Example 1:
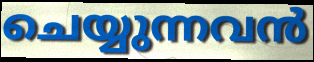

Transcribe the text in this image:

ചെയ്യുന്നവൻ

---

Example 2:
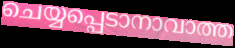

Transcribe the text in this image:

ചെയ്യപ്പെടാനാവാത്ത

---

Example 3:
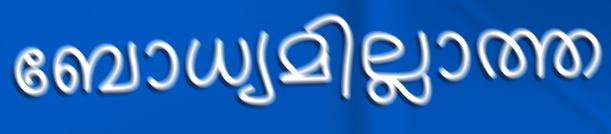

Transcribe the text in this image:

ബോധ്യമില്ലാത്ത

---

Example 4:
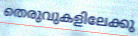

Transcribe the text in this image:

തെരുവുകളിലേക്കു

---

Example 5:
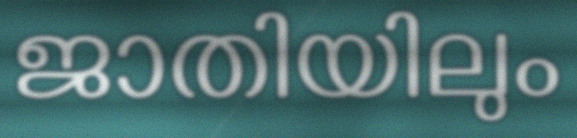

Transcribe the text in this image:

ജാതിയിലും